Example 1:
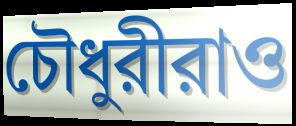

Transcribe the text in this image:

চৌধুরীরাও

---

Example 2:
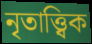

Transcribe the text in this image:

নৃতাত্ত্বিক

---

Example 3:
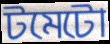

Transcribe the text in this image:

টমেটো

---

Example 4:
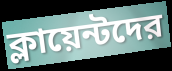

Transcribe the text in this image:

ক্লায়েন্টদের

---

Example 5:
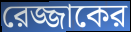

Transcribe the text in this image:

রেজ্জাকের